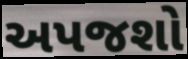
અપજશો